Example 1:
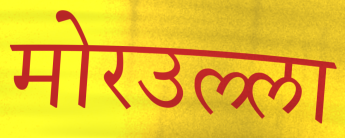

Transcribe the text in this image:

मोरउल्ला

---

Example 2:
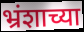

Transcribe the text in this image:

भ्रंशाच्या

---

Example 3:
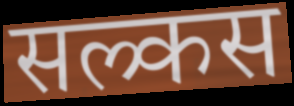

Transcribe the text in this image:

सल्कस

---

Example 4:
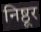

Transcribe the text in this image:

निष्ठूर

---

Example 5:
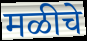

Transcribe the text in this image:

मळीचे